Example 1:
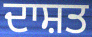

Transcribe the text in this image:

ਦਾਸ਼ਤ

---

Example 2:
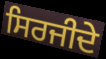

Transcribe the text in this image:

ਸਿਰਜੀਦੇ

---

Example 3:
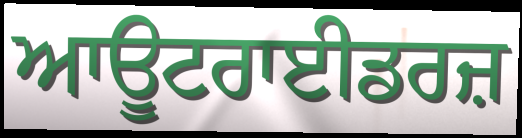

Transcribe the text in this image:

ਆਊਟਰਾਈਡਰਜ਼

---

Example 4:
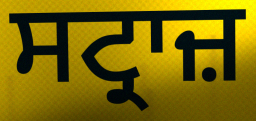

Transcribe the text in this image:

ਸਟ੍ਰਾਜ਼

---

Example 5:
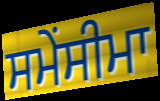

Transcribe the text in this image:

ਸਮੇਂਸੀਮਾ